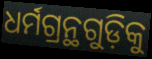
ଧର୍ମଗ୍ରନ୍ଥଗୁଡ଼ିକୁ